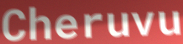
Cheruvu